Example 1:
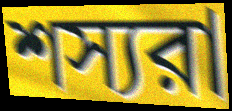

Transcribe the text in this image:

শস্যরা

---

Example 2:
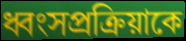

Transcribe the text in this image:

ধ্বংসপ্রক্রিয়াকে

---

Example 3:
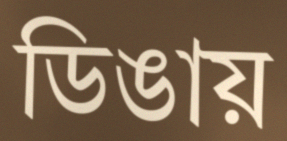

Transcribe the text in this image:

ডিঙায়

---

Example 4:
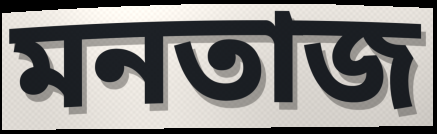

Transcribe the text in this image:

মনতাজ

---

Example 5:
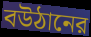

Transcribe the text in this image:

বউঠানের